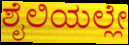
ಶೈಲಿಯಲ್ಲೇ